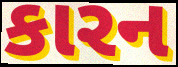
કારન